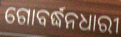
ଗୋବର୍ଦ୍ଧନଧାରୀ